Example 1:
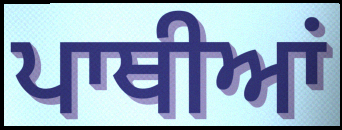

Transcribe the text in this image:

ਪਾਥੀਆਂ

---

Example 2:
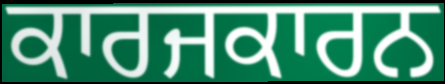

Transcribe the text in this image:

ਕਾਰਜਕਾਰਨ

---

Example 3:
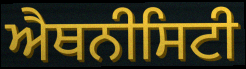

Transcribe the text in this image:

ਐਥਨੀਸਿਟੀ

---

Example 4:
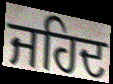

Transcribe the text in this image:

ਜਹਿਦ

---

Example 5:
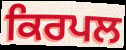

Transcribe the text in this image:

ਕਿਰਪਲ